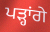
ਪੜ੍ਹਾਂਗੇ